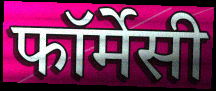
फॉर्मेसी